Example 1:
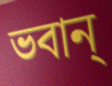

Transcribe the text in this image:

ভবান্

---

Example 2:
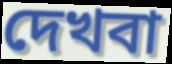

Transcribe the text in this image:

দেখবা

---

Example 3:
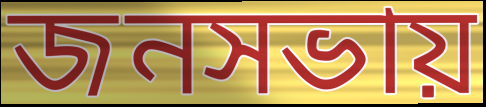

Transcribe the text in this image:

জনসভায়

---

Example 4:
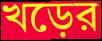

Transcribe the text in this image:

খড়ের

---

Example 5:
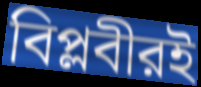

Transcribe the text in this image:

বিপ্লবীরই